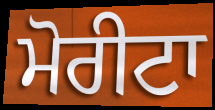
ਮੋਰੀਟਾ